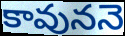
కావుననె